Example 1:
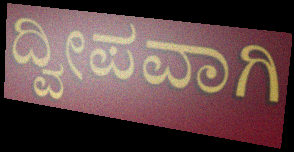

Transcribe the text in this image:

ದ್ವೀಪವಾಗಿ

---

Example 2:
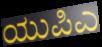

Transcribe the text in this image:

ಯುಪಿಎ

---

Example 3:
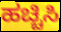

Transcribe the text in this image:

ಹಚ್ಚಿಸಿ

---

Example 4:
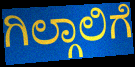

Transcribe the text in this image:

ಗಿಲ್ಗಾಲಿಗೆ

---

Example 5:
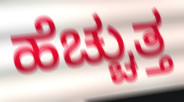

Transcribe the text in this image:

ಹೆಚ್ಚುತ್ತ